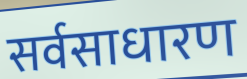
सर्वसाधारण